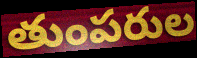
తుంపరుల